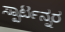
ಸ್ಪಾರ್ಟನ್ನರ